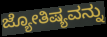
ಜ್ಯೋತಿಷ್ಯವನ್ನು